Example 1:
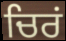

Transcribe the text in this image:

ਚਿਰਂ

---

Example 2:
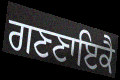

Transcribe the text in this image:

ਗਣਣਾਇਕੈ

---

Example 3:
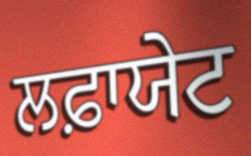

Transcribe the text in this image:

ਲਫ਼ਾਯੇਟ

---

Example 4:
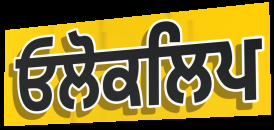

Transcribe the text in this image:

ਓਲੋਕਲਿਪ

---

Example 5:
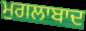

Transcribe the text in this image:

ਮੁਗਲਾਬਾਦ